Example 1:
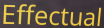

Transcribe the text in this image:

Effectual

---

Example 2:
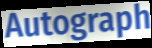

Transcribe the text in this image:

Autograph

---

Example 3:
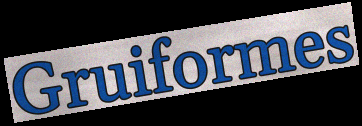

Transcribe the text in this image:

Gruiformes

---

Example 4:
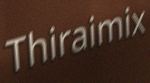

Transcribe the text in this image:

Thiraimix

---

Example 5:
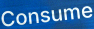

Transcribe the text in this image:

Consume